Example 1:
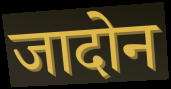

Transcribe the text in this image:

जादोन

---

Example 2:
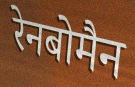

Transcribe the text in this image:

रेनबोमैन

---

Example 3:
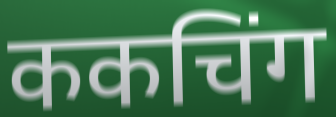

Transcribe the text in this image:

ककचिंग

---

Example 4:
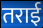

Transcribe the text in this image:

तराई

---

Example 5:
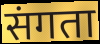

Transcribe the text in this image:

संगता